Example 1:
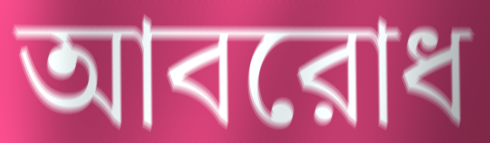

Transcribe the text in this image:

আবরোধ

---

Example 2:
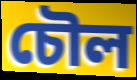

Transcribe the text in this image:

চৌল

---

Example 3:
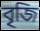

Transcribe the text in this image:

বৃজি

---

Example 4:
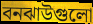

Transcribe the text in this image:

বনঝাউগুলো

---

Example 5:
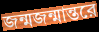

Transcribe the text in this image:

জন্মজন্মান্তরে